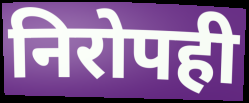
निरोपही